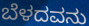
ಬೆಳದವನು